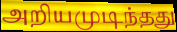
அறியமுடிந்தது